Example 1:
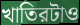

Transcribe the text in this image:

খাতিরটাও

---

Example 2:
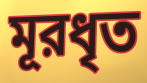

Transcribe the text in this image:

মূরধৃত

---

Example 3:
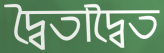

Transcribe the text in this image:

দ্বৈতাদ্বৈত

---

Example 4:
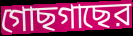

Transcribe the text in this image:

গোছগাছের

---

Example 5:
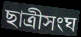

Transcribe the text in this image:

ছাত্রীসংঘ